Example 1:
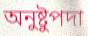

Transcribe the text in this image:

অনুষ্টুপদা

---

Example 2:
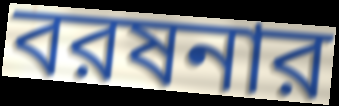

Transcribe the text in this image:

বরষনার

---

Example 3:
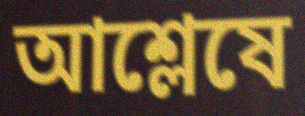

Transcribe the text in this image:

আশ্লেষে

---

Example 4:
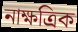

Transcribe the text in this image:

নাক্ষত্রিক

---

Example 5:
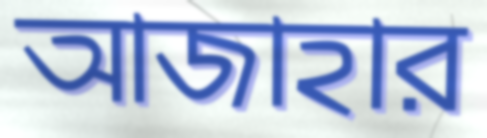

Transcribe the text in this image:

আজাহার